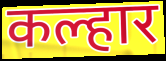
कल्हार